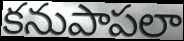
కనుపాపలా